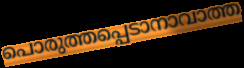
പൊരുത്തപ്പെടാനാവാത്ത